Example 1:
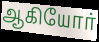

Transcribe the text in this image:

ஆகியோர்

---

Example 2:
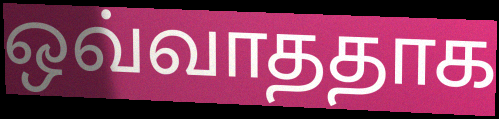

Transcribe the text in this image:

ஒவ்வாததாக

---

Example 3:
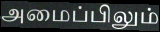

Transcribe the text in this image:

அமைப்பிலும்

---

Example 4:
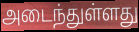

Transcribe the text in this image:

அடைந்துள்ளது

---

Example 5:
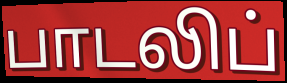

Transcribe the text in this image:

பாடலிப்